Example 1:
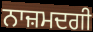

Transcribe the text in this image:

ਨਾਜ਼ਮਦਗੀ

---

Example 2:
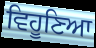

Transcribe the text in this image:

ਵਿਹੂਣਿਆ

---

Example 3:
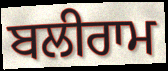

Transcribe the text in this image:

ਬਲੀਰਾਮ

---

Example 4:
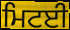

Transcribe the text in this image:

ਮਿਟਈ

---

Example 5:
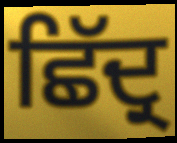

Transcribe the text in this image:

ਛਿੱਦ੍ਰ